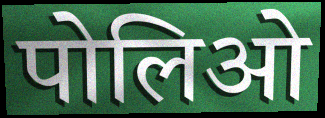
पोलिओ